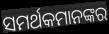
ସମର୍ଥକମାନଙ୍କର